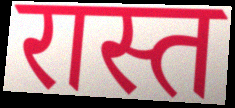
रास्त